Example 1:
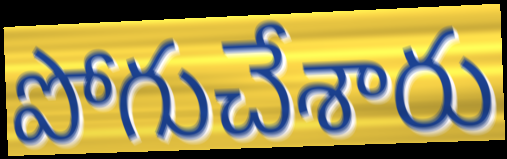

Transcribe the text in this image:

పోగుచేశారు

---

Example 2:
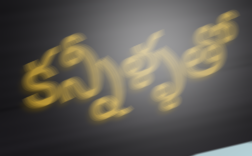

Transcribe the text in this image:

కన్నీళ్ళతో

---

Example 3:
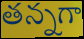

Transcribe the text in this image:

తన్నగా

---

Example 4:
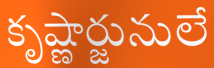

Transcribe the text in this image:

కృష్ణార్జునులే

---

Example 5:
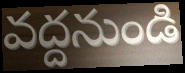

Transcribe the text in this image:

వద్దనుండి